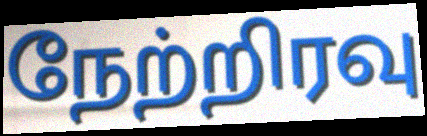
நேற்றிரவு